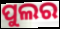
ପୁଲର